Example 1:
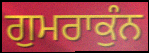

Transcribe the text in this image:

ਗੁਮਰਾਕੁੰਨ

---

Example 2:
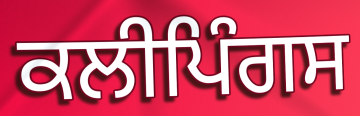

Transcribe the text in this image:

ਕਲੀਪਿੰਗਸ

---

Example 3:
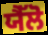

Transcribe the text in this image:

ਯੈੱਲੋ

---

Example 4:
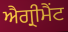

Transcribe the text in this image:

ਐਗ੍ਰੀਮੈਂਟ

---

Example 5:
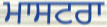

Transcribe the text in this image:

ਮਾਸਟਰਾ